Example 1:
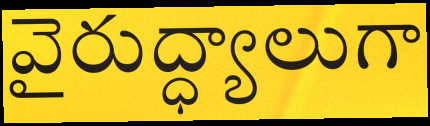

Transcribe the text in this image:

వైరుద్ధ్యాలుగా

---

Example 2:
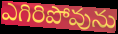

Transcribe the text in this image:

ఎగిరిపోవును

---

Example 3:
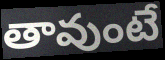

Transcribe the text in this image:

తావుంటే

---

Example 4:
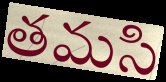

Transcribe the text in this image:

తమసి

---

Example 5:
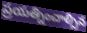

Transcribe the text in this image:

ప్రయత్నించాల్సిన